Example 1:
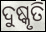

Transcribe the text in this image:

ଦୁଷ୍କୃତି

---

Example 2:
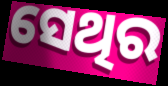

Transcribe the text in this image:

ସେଥିର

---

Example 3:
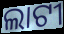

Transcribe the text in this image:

ଲାଟୀ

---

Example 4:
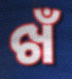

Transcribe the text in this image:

ଖଁ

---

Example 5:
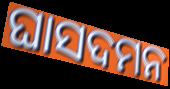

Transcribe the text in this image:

ଘାସଦମନ